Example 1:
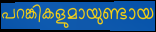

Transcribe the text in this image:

പറങ്കികളുമായുണ്ടായ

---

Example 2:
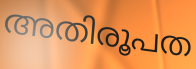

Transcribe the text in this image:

അതിരൂപത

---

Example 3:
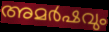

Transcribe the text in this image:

അമർഷവും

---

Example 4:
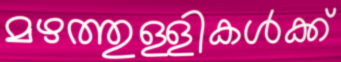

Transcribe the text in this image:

മഴത്തുള്ളികൾക്ക്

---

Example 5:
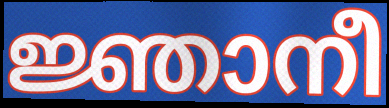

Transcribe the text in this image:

ജ്ഞാനീ